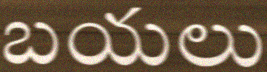
బయలు